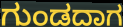
ಗುಂಡದಾಗ